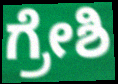
ಗ್ರೇಶಿ